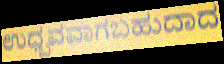
ಉಧ್ಬವವಾಗಬಹುದಾದ